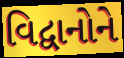
વિદ્વાનોને